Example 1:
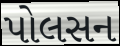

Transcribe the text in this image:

પોલસન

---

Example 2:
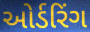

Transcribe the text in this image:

ઓર્ડરિંગ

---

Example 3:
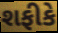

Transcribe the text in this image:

શફીકે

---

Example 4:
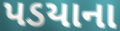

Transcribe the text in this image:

પડયાના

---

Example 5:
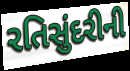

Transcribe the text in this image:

રતિસુંદરીની